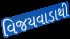
વિજયવાડાથી